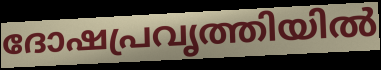
ദോഷപ്രവൃത്തിയിൽ